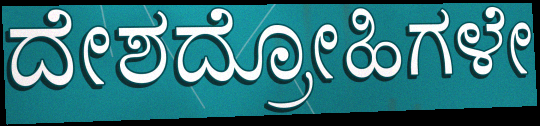
ದೇಶದ್ರೋಹಿಗಳೇ